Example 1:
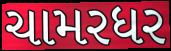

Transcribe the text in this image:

ચામરધર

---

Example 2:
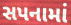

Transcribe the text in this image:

સપનામાં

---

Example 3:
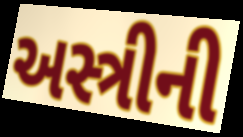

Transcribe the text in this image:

અસ્ત્રીની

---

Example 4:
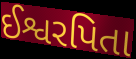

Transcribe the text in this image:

ઈશ્વરપિતા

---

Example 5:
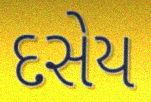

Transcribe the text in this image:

દસેય